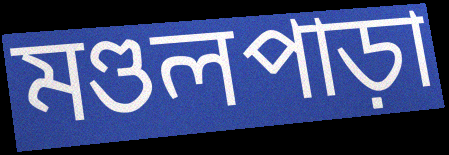
মণ্ডলপাড়া